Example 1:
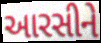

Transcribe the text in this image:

આરસીને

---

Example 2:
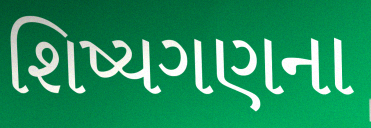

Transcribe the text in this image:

શિષ્યગણના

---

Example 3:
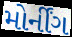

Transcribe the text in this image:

મોર્નીંગ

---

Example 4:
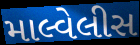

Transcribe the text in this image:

માલ્વેલીસ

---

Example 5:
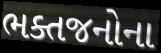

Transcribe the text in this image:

ભક્તજનોના